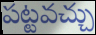
పట్టవచ్చు